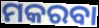
ମକରବା